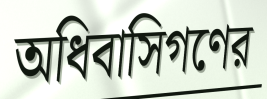
অধিবাসিগণের